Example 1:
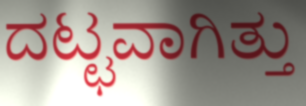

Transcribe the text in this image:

ದಟ್ಟವಾಗಿತ್ತು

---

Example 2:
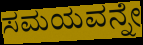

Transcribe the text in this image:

ಸಮಯವನ್ನೇ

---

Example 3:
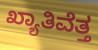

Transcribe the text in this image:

ಖ್ಯಾತಿವೆತ್ತ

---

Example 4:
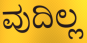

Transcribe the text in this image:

ವುದಿಲ್ಲ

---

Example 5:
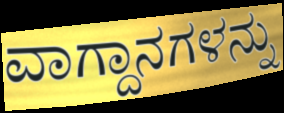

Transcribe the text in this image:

ವಾಗ್ದಾನಗಳನ್ನು